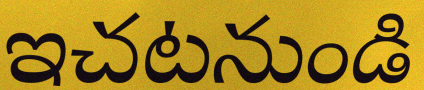
ఇచటనుండి